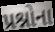
પ્રશ્નોના